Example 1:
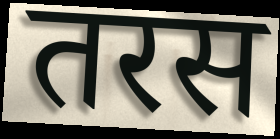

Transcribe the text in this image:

तरस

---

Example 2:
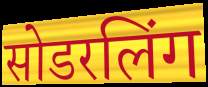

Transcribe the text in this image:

सोडरलिंग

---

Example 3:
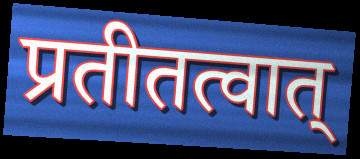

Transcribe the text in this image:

प्रतीतत्वात्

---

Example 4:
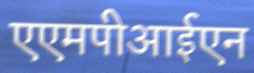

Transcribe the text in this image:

एएमपीआईएन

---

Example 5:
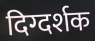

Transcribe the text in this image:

दिग्दर्शक